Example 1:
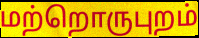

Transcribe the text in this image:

மற்றொருபுறம்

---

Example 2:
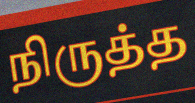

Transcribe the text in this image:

நிருத்த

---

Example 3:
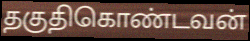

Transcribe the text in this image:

தகுதிகொண்டவன்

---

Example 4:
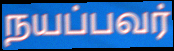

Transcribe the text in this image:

நயப்பவர்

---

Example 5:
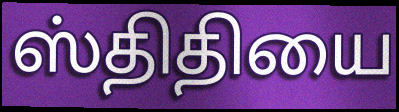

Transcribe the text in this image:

ஸ்திதியை